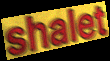
shalet